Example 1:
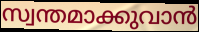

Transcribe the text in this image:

സ്വന്തമാക്കുവാൻ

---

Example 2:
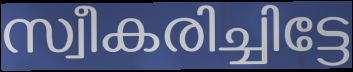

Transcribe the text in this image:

സ്വീകരിച്ചിട്ടേ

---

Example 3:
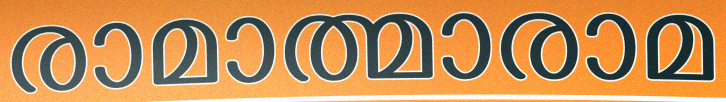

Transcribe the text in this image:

രാമാത്മാരാമ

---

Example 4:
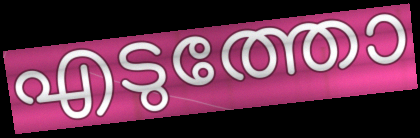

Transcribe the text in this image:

എടുത്തോ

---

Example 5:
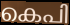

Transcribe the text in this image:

കെപി